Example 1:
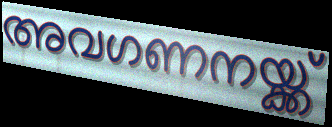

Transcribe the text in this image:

അവഗണനയ്ക്ക്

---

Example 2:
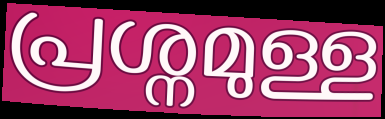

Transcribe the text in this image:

പ്രശ്നമുള്ള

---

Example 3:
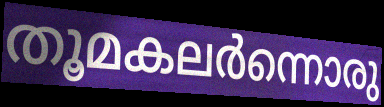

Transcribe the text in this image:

തൂമകലർന്നൊരു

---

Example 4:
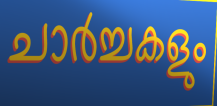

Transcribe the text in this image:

ചാർച്ചകളും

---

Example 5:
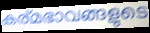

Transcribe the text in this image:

കര്മഭാവങ്ങളുടെ